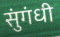
सुंगंधी